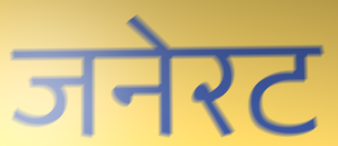
जनेरट